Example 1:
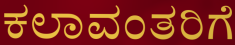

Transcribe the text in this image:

ಕಲಾವಂತರಿಗೆ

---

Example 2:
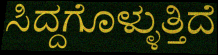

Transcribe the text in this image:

ಸಿದ್ದಗೊಳ್ಳುತ್ತಿದೆ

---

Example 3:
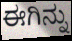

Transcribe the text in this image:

ಈಗಿನ್ನು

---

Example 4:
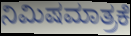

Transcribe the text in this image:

ನಿಮಿಷಮಾತ್ರಕೆ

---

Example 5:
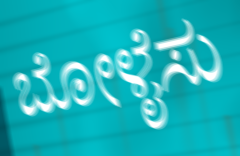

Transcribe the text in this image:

ಬೋಳೈಸು